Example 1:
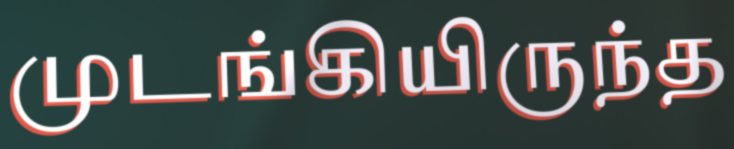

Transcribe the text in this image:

முடங்கியிருந்த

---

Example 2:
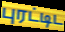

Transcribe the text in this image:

புரட்டிட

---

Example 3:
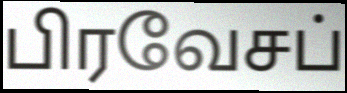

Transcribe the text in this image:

பிரவேசப்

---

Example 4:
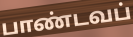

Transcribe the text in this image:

பாண்டவப்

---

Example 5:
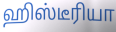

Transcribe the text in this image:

ஹிஸ்டீரியா